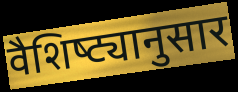
वैशिष्ट्यानुसार